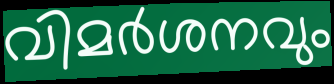
വിമർശനവും